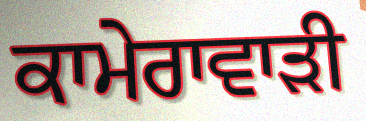
ਕਾਮੇਰਾਵਾੜੀ